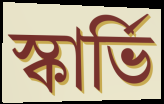
স্কার্ভি